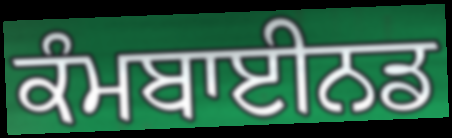
ਕੰਮਬਾਈਨਡ